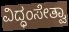
ವಿದ್ಧಂಸೇತ್ವಾ